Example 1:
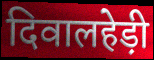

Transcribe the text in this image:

दिवालहेड़ी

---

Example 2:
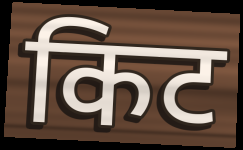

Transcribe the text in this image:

किट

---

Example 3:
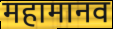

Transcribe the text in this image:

महामानव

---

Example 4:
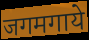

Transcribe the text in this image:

जगमगाये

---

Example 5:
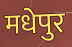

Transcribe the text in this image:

मधेपुर